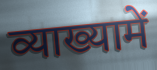
व्याख्यामें